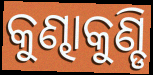
କୁଣ୍ଢାକୁଣ୍ଡି